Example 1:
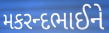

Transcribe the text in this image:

મકરન્દભાઈને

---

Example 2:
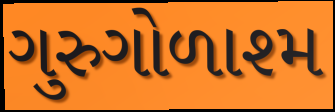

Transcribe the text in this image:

ગુરુગોળાશ્મ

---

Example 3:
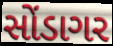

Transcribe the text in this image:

સોંડાગર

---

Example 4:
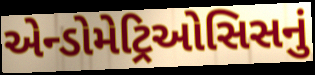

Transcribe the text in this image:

એન્ડોમેટ્રિઓસિસનું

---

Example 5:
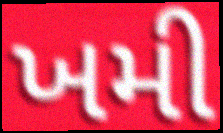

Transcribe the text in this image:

ખમી